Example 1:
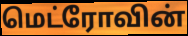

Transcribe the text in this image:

மெட்ரோவின்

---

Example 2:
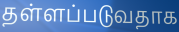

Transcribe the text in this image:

தள்ளப்படுவதாக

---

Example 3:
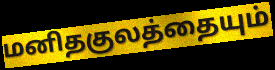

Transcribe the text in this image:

மனிதகுலத்தையும்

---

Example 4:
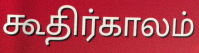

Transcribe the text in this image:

கூதிர்காலம்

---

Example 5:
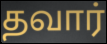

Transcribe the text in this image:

தவார்